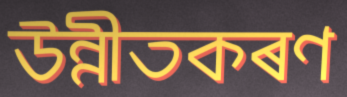
উন্নীতকৰণ